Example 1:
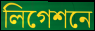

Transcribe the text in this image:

লিগেশনে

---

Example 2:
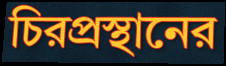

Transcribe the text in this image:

চিরপ্রস্থানের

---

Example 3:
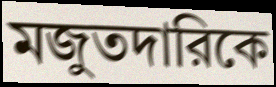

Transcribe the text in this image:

মজুতদারিকে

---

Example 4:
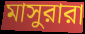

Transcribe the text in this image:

মাসুরারা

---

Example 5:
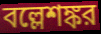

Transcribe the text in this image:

বল্লেশঙ্কর